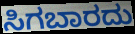
ಸಿಗಬಾರದು